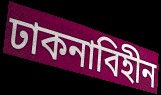
ঢাকনাবিহীন